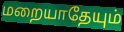
மறையாதேயும்